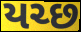
યચ્છ